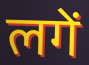
लगें